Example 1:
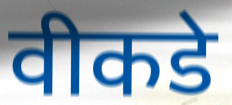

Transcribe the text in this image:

वीकडे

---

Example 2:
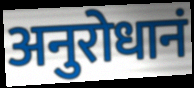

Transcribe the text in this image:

अनुरोधानं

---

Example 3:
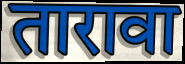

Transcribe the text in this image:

तारावा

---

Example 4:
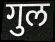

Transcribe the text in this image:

गुल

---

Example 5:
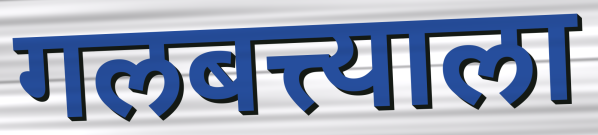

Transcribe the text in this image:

गलबत्त्याला